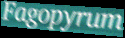
Fagopyrum